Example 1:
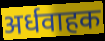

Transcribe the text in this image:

अर्धवाहक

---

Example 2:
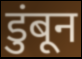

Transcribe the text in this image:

डुंबून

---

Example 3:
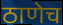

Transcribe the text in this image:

ठाणेच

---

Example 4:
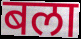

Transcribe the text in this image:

बला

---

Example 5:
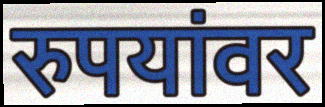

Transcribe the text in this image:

रुपयांवर